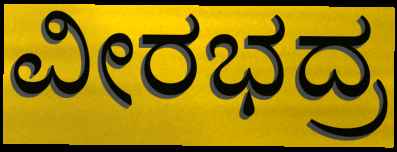
ವೀರಭದ್ರ